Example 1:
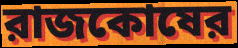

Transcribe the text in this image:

রাজকোষের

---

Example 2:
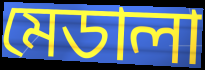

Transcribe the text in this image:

মেডালা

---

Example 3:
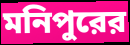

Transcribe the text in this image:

মনিপুরের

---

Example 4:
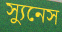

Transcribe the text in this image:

স্যুনেস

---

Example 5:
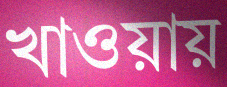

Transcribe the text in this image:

খাওয়ায়